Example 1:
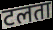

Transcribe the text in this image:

टलता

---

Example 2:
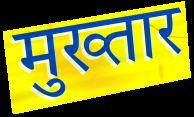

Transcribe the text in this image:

मुख्‍तार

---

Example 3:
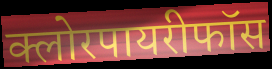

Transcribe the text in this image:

क्लोरपायरीफॉस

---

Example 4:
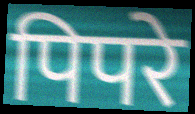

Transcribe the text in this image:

पिपरे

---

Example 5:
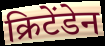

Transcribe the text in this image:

क्रिटेंडेन